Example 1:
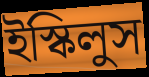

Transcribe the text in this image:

ইস্কিলুস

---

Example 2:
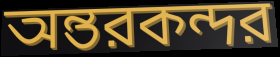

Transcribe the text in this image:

অন্তরকন্দর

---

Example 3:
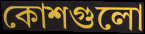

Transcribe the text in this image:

কোশগুলো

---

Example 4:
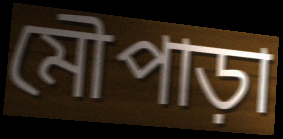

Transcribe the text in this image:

মৌপাড়া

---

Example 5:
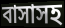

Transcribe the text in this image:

বাসাসহ